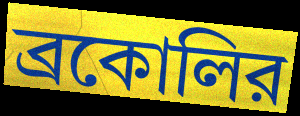
ব্রকোলির